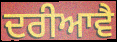
ਦਰੀਆਵੈ